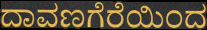
ದಾವಣಗೆರೆಯಿಂದ